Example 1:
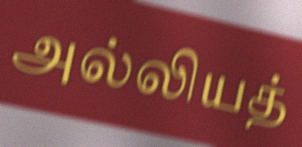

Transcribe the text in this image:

அல்லியத்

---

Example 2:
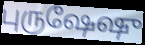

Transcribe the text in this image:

புருஷேஷு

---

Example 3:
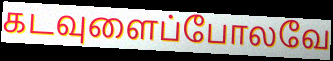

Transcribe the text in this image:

கடவுளைப்போலவே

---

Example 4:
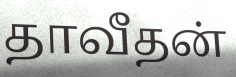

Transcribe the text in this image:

தாவீதன்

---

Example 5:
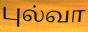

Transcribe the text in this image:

புல்வா